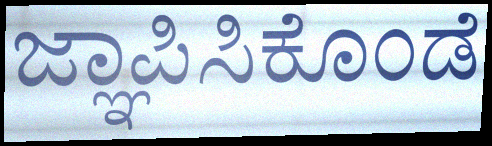
ಜ್ಞಾಪಿಸಿಕೊಂಡೆ